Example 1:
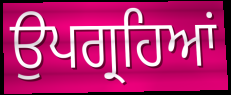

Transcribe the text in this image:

ਉਪਗ੍ਰਹਿਆਂ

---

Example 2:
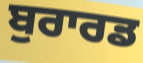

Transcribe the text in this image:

ਬੁਰਾਰਡ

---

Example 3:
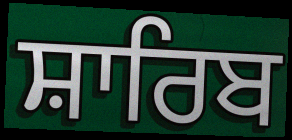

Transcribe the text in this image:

ਸ਼ਾਰਿਬ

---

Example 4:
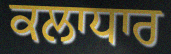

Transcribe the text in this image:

ਕਲਾਧਾਰ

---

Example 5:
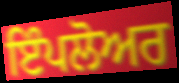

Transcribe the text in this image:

ਇੰਪਲੋਅਰ